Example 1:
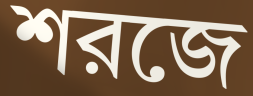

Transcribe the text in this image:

শরজে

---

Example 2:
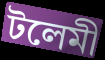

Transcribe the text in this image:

টলেমী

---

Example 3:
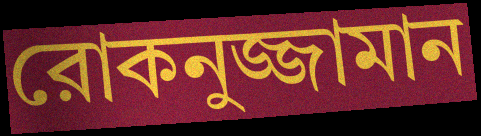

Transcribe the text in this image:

রোকনুজ্জামান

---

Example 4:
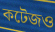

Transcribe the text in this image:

কটেজও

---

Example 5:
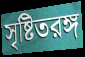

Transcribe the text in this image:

সৃষ্টিতরঙ্গ